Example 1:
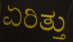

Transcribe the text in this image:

ಏರಿತ್ತು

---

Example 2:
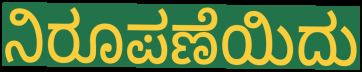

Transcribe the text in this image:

ನಿರೂಪಣೆಯಿದು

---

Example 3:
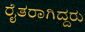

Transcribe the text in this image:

ರೈತರಾಗಿದ್ದರು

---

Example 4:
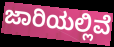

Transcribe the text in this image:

ಜಾರಿಯಲ್ಲಿವೆ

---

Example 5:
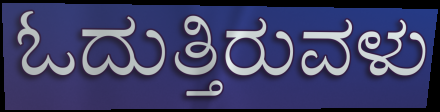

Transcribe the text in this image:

ಓದುತ್ತಿರುವಳು